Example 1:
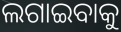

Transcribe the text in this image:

ଲଗାଇବାକୁ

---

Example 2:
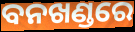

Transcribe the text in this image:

ବନଖଣ୍ଡରେ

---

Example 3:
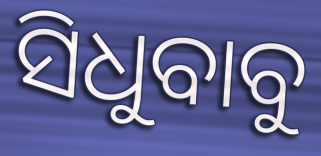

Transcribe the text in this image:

ସିଧୁବାବୁ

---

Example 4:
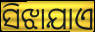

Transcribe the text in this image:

ସିଝାଯାଏ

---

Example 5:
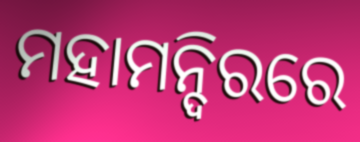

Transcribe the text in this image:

ମହାମନ୍ଦିରରେ